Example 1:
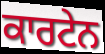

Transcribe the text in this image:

ਕਾਰਟੇਨ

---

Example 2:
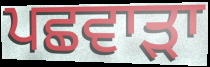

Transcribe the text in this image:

ਪਛਵਾੜਾ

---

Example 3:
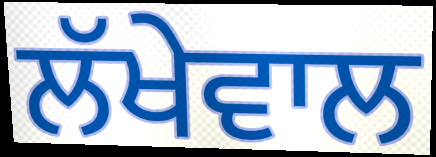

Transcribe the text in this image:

ਲੱਖੇਵਾਲ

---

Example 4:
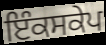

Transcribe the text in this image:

ਇੰਕਸਕੇਪ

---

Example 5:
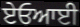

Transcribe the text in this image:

ਏਓਆਈ